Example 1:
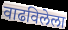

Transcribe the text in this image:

वाढविलेला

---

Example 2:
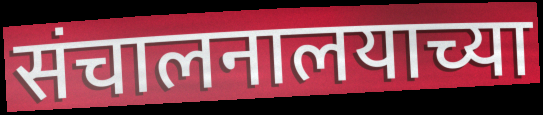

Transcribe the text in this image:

संचालनालयाच्या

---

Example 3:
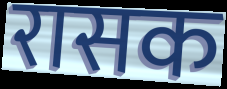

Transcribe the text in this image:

रासक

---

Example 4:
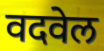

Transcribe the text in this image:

वदवेल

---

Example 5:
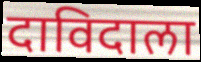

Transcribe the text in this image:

दाविदाला